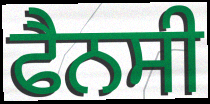
ਫੈਨਸੀ